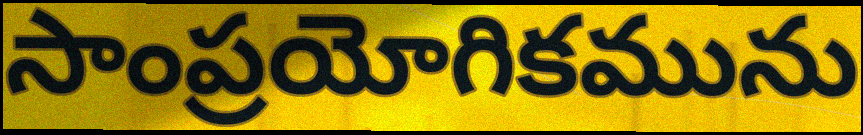
సాంప్రయోగికమును